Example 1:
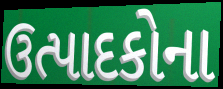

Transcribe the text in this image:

ઉત્પાદકોના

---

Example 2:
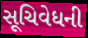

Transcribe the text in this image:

સૂચિવેધની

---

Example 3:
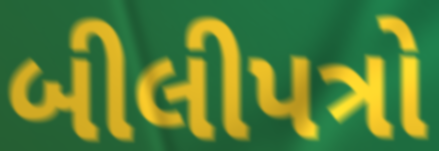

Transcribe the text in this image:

બીલીપત્રો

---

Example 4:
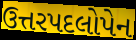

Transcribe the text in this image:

ઉત્તરપદલોપેન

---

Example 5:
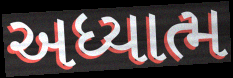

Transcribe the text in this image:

અધ્યાત્મ